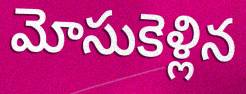
మోసుకెళ్లిన